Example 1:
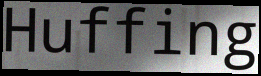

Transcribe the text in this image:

Huffing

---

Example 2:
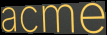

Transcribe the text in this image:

acme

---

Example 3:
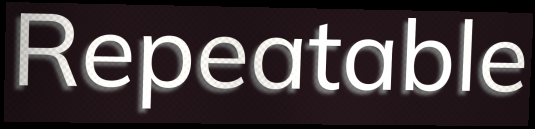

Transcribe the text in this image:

Repeatable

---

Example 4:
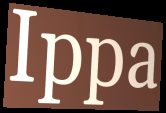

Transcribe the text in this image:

Ippa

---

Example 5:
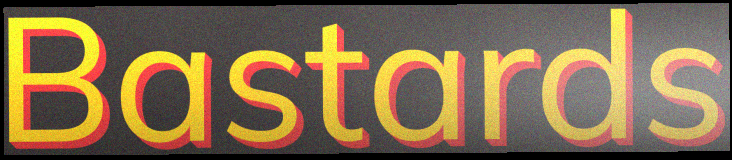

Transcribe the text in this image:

Bastards